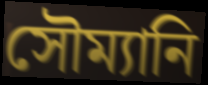
সৌম্যানি